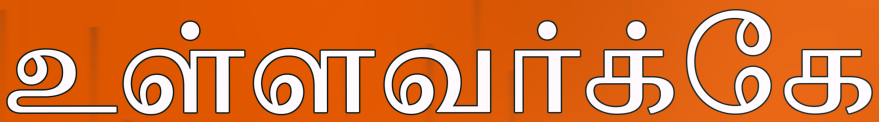
உள்ளவர்க்கே